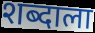
शब्दाला